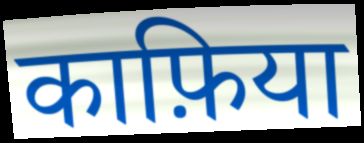
काफ़िया